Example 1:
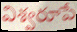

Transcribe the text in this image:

విశ్వరూపే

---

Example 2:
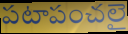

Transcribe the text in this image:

పటాపంచలై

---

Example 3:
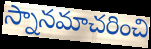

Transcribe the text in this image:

స్నానమాచరించి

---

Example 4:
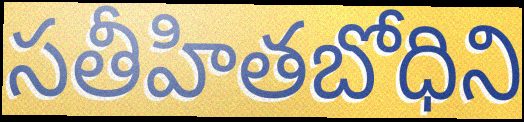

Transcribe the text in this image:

సతీహితబోధిని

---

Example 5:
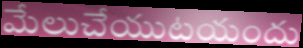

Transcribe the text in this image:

మేలుచేయుటయందు